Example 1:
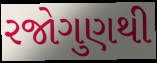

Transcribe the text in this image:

રજોગુણથી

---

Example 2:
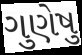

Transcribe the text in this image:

ગુણેષુ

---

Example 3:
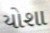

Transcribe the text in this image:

યોશા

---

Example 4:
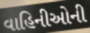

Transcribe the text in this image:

વાહિનીઓની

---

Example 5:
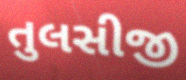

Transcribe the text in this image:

તુલસીજી